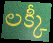
లక్కీ